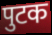
पुटक